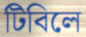
টিবিলে